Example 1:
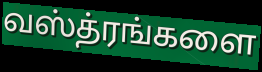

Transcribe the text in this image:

வஸ்த்ரங்களை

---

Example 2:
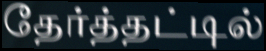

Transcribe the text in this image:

தேர்த்தட்டில்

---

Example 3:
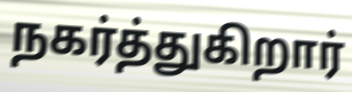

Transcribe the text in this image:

நகர்த்துகிறார்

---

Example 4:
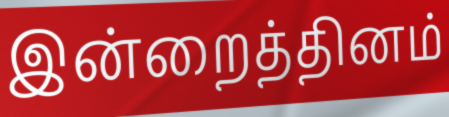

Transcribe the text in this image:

இன்றைத்தினம்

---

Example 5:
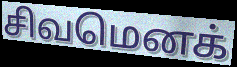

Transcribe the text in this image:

சிவமெனக்